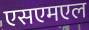
एसएमएल